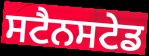
ਸਟੈਨਸਟੇਡ